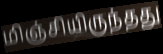
மிஞ்சியிருந்தது